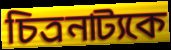
চিত্রনাট্যকে